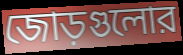
জোড়গুলোর